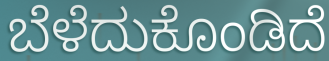
ಬೆಳೆದುಕೊಂಡಿದೆ